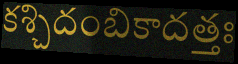
కశ్చిదంబికాదత్తః